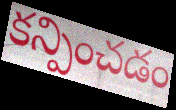
కన్పించడం